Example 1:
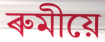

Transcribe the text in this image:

ৰুমীয়ে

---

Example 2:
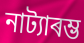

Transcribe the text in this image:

নাট্যাৰম্ভ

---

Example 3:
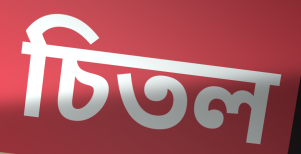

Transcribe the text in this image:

চিতল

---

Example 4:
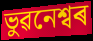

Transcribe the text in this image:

ভুৱনেশ্বৰ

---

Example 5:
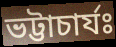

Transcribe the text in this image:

ভট্টাচাৰ্যঃ